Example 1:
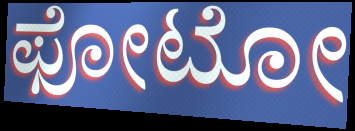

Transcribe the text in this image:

ಫೋಟೋ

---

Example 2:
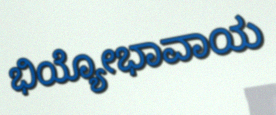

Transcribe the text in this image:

ಭಿಯ್ಯೋಭಾವಾಯ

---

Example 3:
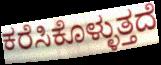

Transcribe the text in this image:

ಕರೆಸಿಕೊಳ್ಳುತ್ತದೆ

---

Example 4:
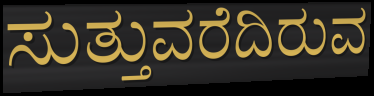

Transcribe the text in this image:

ಸುತ್ತುವರೆದಿರುವ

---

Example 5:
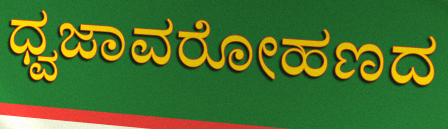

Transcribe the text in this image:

ಧ್ವಜಾವರೋಹಣದ